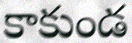
కాకుండ